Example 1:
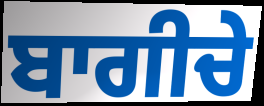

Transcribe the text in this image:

ਬਾਗੀਚੇ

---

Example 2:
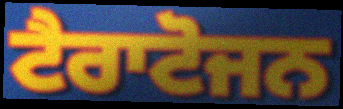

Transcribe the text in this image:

ਟੈਰਾਟੋਜਨ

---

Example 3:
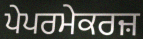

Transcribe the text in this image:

ਪੇਪਰਮੇਕਰਜ਼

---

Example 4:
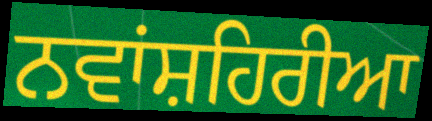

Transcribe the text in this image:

ਨਵਾਂਸ਼ਹਿਰੀਆ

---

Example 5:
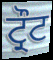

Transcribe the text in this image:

ਟ੍ਰੌਟ